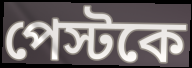
পেস্টকে